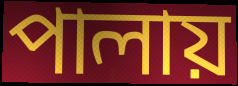
পালায়